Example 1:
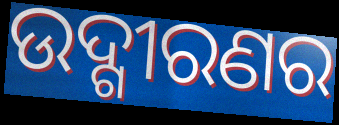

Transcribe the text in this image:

ଉଦ୍ଗୀରଣର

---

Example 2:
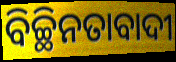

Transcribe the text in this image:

ବିଚ୍ଛିନତାବାଦୀ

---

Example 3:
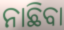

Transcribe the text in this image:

ନାଛିବା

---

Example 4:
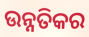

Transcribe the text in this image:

ଉନ୍ନତିକର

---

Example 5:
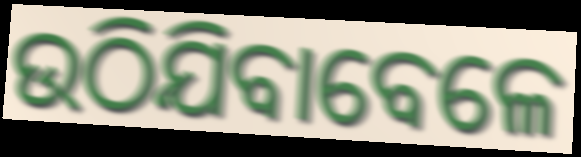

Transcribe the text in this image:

ଉଠିଯିବାବେଳେ